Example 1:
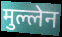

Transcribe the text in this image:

मुल्लेन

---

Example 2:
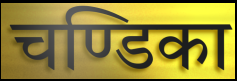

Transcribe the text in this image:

चण्डिका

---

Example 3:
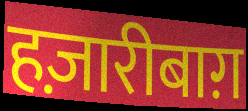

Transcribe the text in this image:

हज़ारीबाग़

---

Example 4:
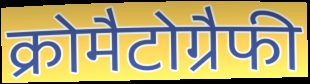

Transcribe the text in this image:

क्रोमैटोग्रैफी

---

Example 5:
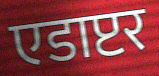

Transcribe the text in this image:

एडाप्टर